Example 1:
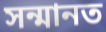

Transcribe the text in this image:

সন্মানত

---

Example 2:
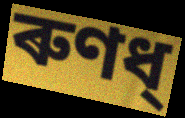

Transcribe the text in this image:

ৰুণধ্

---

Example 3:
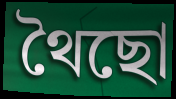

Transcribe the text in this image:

থৈছো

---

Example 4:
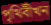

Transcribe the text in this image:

পৃথিবীখন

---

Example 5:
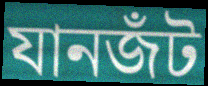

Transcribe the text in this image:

যানজঁট